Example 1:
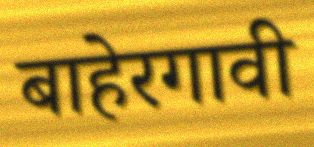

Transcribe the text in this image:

बाहेरगावी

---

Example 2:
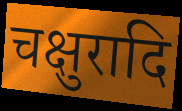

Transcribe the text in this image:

चक्षुरादि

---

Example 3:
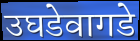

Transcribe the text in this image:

उघडेवागडे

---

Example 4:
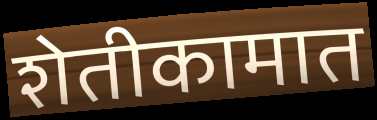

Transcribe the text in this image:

शेतीकामात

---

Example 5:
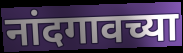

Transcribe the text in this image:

नांदगावच्या